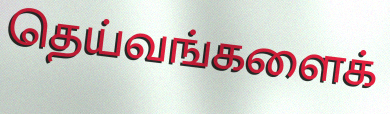
தெய்வங்களைக்